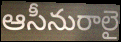
ఆసీనురాలై